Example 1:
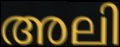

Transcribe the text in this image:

അലി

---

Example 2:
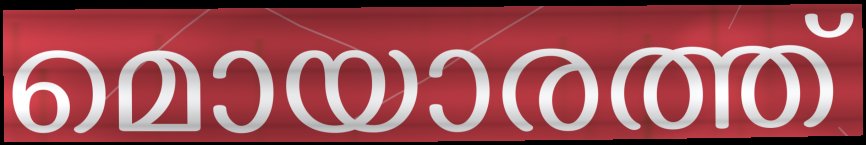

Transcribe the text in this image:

മൊയാരത്ത്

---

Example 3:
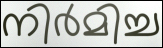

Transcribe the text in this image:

നിർമിച്ച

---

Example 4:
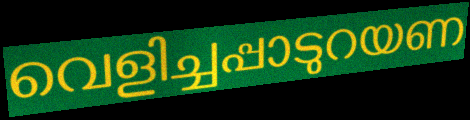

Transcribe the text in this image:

വെളിച്ചപ്പാടുറയണ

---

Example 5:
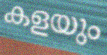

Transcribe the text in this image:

കളയും